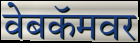
वेबकॅमवर